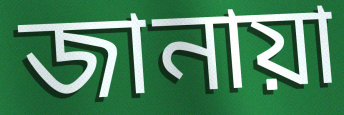
জানায়া